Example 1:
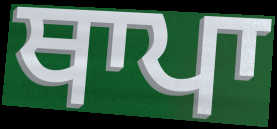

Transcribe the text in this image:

ਥਾਪਾ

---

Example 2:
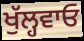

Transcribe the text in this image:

ਖੁੱਲ੍ਹਵਾਓ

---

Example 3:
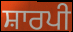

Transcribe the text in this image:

ਸ਼ਾਰਪੀ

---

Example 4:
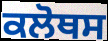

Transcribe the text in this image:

ਕਲੋਥਸ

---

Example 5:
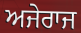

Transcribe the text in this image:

ਅਜੇਰਾਜ